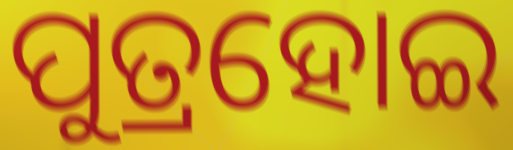
ପୁତ୍ରହୋଇ